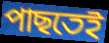
পাছতেই